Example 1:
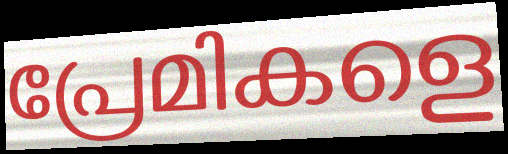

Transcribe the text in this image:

പ്രേമികളെ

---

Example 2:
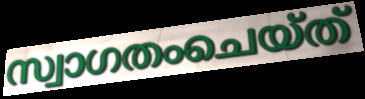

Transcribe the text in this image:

സ്വാഗതംചെയ്ത്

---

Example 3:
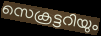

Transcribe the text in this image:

സെക്രട്ടറിയും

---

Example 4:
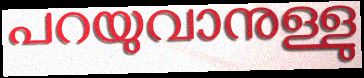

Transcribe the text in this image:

പറയുവാനുള്ളു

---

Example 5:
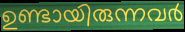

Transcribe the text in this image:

ഉണ്ടായിരുന്നവർ